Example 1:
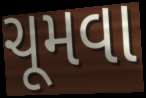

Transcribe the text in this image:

ચૂમવા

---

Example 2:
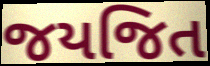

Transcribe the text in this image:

જયજિત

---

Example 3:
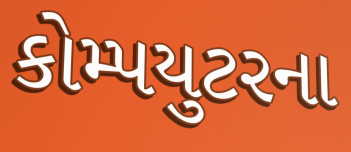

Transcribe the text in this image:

કોમ્પયુટરના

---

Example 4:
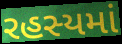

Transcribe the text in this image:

રહસ્યમાં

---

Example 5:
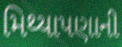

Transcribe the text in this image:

મિથ્યાપણાની